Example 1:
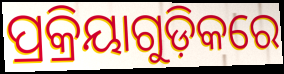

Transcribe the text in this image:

ପ୍ରକ୍ରିୟାଗୁଡ଼ିକରେ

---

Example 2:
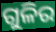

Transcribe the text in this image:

ଗୁଳିର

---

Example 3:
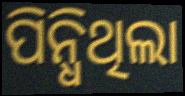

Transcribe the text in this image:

ପିନ୍ଧିଥିଲା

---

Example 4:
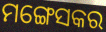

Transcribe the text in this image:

ମଙ୍ଗେସକର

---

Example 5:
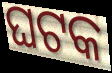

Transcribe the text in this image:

ଘଟକ